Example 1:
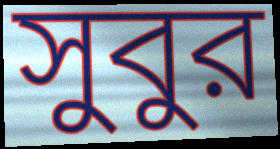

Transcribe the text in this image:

সুবুর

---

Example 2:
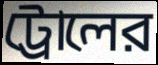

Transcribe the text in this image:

ট্রোলের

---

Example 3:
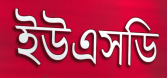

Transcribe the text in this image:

ইউএসডি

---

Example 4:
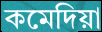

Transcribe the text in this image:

কমেদিয়া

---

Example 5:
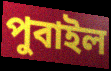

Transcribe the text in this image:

পুবাইল